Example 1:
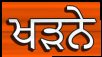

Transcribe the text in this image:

ਖੜਨੇ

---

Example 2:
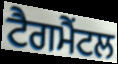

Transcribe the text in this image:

ਟੈਗਮੈਂਟਲ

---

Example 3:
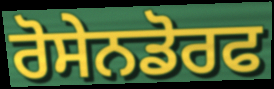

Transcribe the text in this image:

ਰੋਸੇਨਡੋਰਫ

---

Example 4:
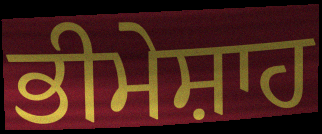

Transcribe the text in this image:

ਭੀਮੇਸ਼ਾਹ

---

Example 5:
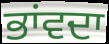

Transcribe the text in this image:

ਭਾਂਵਦਾ